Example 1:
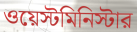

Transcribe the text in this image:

ওয়েস্টমিনিস্টার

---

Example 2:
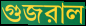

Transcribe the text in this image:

গুজরাল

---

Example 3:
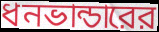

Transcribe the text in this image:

ধনভান্ডারের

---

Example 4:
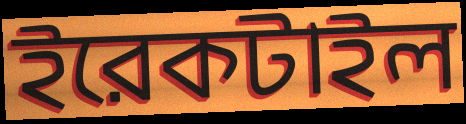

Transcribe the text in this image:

ইরেকটাইল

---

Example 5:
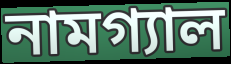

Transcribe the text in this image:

নামগ্যাল